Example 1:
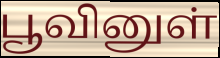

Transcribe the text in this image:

பூவினுள்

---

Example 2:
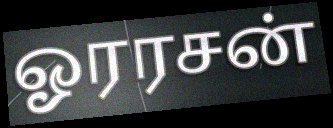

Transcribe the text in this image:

ஓரரசன்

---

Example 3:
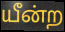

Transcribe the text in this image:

யீன்ற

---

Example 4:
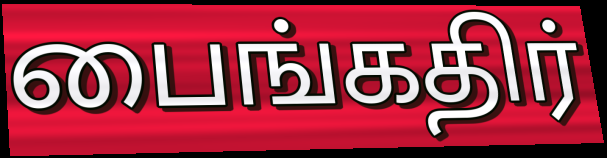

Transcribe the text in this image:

பைங்கதிர்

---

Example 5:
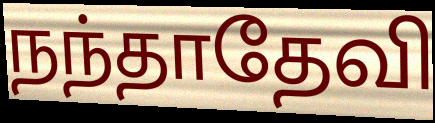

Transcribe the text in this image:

நந்தாதேவி